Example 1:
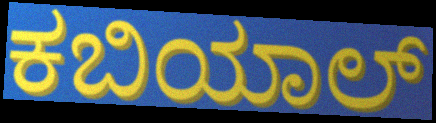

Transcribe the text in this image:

ಕಬಿಯಾಲ್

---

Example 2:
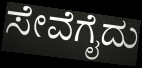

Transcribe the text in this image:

ಸೇವೆಗೈದು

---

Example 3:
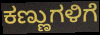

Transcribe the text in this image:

ಕಣ್ಣುಗಳಿಗೆ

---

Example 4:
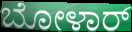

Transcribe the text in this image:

ಬೋಳಾರ್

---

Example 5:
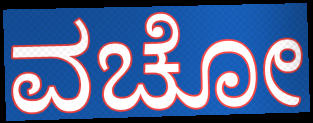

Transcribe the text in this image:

ವಚೋ